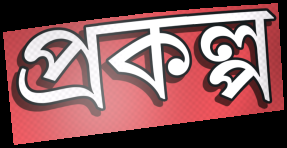
প্ৰকল্প